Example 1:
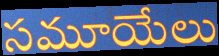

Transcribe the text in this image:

సమూయేలు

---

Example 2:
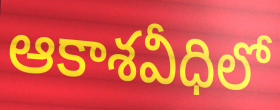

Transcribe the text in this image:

ఆకాశవీధిలో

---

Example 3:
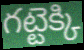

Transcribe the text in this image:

గట్టెక్కి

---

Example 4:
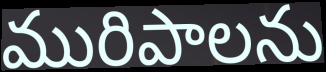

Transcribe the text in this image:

మురిపాలను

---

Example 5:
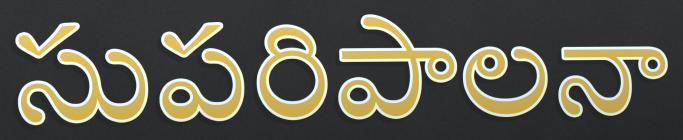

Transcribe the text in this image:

సుపరిపాలనా